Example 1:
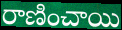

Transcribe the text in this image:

రాణించాయి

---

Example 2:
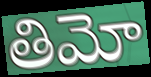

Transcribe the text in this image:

తిమో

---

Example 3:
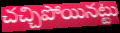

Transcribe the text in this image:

చచ్చిపోయినట్టు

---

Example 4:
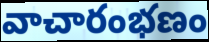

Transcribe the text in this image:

వాచారంభణం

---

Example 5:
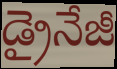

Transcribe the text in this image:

డ్రైనేజీ